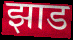
झाड